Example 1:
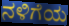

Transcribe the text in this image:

ನಳಿಗೆಯ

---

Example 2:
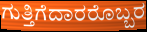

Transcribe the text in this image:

ಗುತ್ತಿಗೆದಾರರೊಬ್ಬರ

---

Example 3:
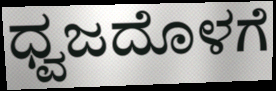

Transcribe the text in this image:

ಧ್ವಜದೊಳಗೆ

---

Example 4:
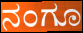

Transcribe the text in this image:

ನಂಗೂ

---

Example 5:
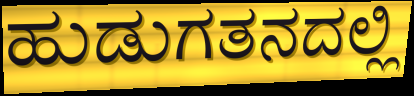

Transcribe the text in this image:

ಹುಡುಗತನದಲ್ಲಿ